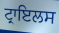
ਟ੍ਰਾਇਲਸ